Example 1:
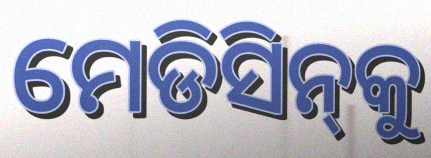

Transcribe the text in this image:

ମେଡିସିନ୍‌କୁ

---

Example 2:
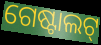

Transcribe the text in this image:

ଗେଷ୍ଟାଲଟ୍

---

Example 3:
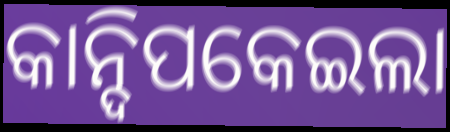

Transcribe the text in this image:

କାନ୍ଦିପକେଇଲା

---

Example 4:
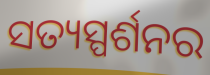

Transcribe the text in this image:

ସତ୍ୟସ୍ପର୍ଶନର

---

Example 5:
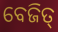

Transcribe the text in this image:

ବେଜିତ୍